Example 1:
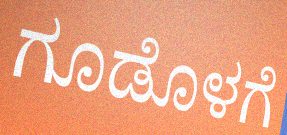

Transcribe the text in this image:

ಗೂಡೊಳಗೆ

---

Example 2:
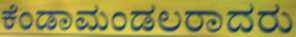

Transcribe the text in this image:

ಕೆಂಡಾಮಂಡಲರಾದರು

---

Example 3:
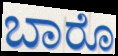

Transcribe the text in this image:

ಬಾರೊ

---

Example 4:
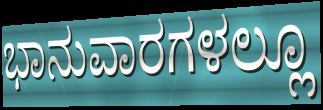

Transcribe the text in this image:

ಭಾನುವಾರಗಳಲ್ಲೂ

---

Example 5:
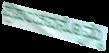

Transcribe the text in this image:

ಪ್ರಪಂಚವನ್ನೊಮ್ಮೆ